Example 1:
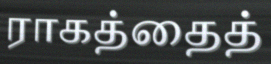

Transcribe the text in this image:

ராகத்தைத்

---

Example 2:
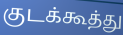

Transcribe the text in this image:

குடக்கூத்து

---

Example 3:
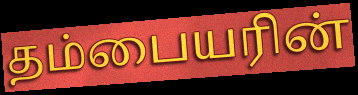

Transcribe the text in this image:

தம்பையரின்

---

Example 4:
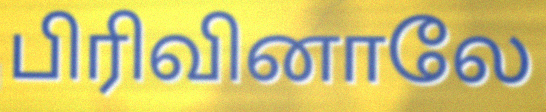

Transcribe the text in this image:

பிரிவினாலே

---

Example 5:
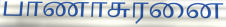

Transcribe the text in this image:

பாணாசுரனை